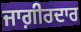
ਜਾਗ਼ੀਰਦਾਰ